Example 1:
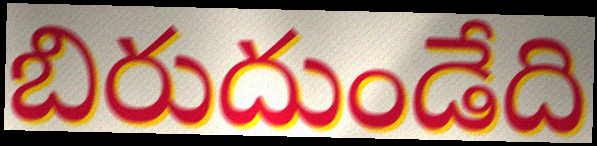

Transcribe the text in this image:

బిరుదుండేది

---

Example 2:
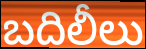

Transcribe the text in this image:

బదిలీలు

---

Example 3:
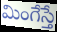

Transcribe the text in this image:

మింగేస్తే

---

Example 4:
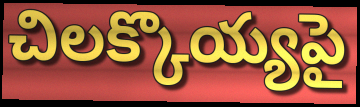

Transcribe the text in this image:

చిలక్కొయ్యపై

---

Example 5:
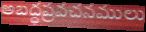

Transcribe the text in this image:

అబద్ధప్రవచనములు